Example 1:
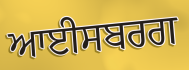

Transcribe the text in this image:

ਆਈਸਬਰਗ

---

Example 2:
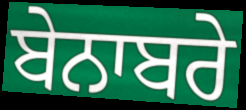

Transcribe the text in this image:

ਬੇਨਾਬਰੇ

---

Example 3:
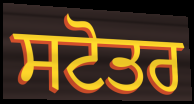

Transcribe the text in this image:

ਸਟੋਤਰ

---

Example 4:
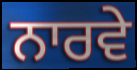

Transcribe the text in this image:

ਨਾਰਵੇ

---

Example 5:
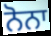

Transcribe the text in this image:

ਨੋਨਾ